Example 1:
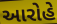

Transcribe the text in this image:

આરોહે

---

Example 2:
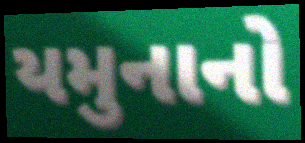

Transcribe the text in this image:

યમુનાનો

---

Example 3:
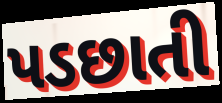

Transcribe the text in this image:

પડછાતી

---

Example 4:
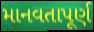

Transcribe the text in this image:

માનવતાપૂર્ણ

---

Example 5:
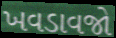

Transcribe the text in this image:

ખવડાવજો